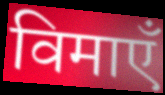
विमाएँ